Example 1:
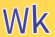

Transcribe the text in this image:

Wk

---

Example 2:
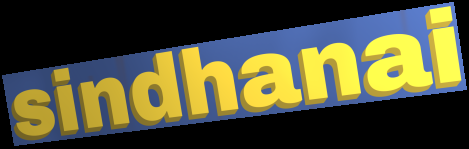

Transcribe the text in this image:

sindhanai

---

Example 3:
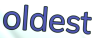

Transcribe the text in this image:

oldest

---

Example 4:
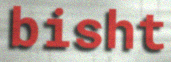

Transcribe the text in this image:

bisht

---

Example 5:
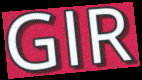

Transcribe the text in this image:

GIR